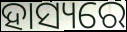
ହାସ୍ୟରେ